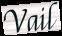
Vail